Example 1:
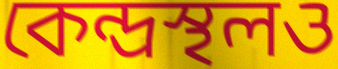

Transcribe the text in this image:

কেন্দ্রস্থলও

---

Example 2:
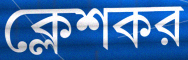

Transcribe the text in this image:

ক্লেশকর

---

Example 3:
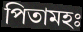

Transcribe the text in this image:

পিতামহঃ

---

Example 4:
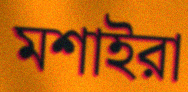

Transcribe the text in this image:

মশাইরা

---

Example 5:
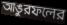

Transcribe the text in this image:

আঙুরফলের